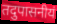
तदुपासनीयं